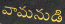
వామనుడి